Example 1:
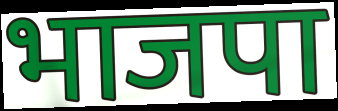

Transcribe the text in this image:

भाजपा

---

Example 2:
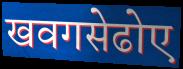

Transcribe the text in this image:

खवगसेढोए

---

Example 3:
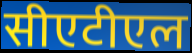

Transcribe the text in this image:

सीएटीएल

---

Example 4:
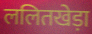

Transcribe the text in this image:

ललितखेड़ा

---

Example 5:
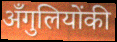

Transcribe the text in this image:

अँगुलियोंकी